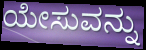
ಯೇಸುವನ್ನು